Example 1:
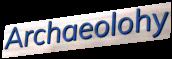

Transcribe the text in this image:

Archaeolohy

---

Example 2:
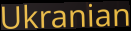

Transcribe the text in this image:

Ukranian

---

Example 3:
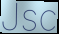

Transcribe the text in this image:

Jsc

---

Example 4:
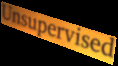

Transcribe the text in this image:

Unsupervised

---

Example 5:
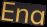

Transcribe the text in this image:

Ena